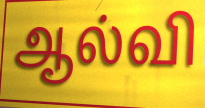
ஆல்வி